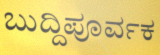
ಬುದ್ದಿಪೂರ್ವಕ